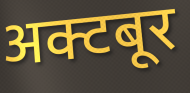
अक्टबूर